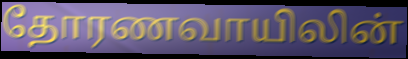
தோரணவாயிலின்